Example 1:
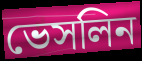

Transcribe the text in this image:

ভেসলিন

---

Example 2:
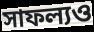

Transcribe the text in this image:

সাফল্যও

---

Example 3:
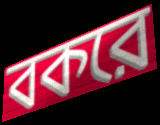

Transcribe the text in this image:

বকরে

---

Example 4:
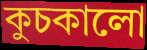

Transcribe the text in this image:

কুচকালো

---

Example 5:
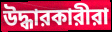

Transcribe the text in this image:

উদ্ধারকারীরা